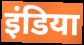
इंडिया